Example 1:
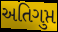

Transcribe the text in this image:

અતિગુપ્ત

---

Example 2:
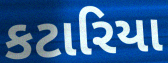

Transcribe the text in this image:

કટારિયા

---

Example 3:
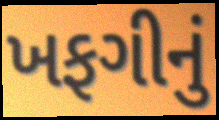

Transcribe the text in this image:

ખફગીનું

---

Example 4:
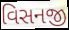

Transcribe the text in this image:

વિસનજી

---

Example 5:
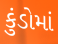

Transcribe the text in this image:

કુંડોમાં